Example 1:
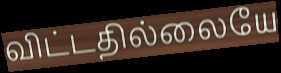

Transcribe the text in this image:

விட்டதில்லையே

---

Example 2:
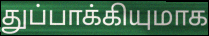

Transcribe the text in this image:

துப்பாக்கியுமாக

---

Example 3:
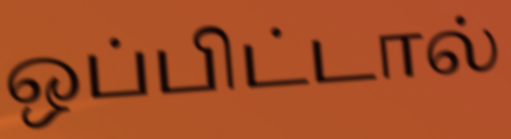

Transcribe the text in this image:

ஒப்பிட்டால்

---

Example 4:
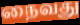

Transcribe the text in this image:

நைவது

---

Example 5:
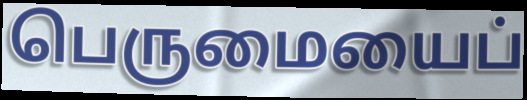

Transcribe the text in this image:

பெருமையைப்